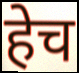
हेच